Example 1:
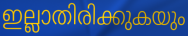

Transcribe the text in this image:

ഇല്ലാതിരിക്കുകയും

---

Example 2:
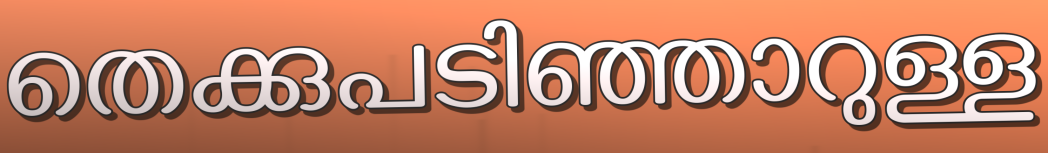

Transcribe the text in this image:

തെക്കുപടിഞ്ഞാറുള്ള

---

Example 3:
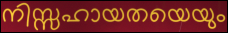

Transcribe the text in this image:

നിസ്സഹായതയെയും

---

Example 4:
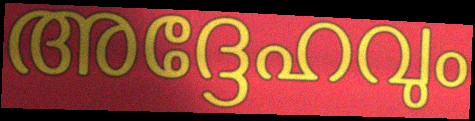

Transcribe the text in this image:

അദ്ദേഹവും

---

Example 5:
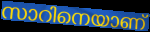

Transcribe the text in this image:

സാറിനെയാണ്